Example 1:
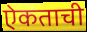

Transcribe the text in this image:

ऐकताची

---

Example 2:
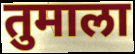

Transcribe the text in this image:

तुमाला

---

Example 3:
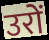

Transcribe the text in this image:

उरों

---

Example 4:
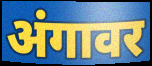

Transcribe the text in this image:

अंगावर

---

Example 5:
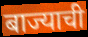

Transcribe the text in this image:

बाज्याची